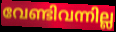
വേണ്ടിവന്നില്ല